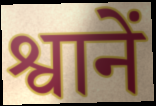
श्वानें